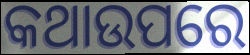
କଥାଉପରେ